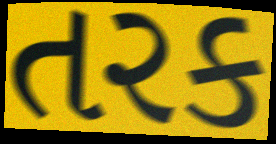
તરક